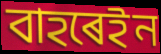
বাহৰেইন